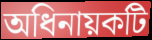
অধিনায়কটি